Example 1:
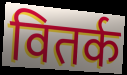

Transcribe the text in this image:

वितर्क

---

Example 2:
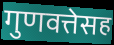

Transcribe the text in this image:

गुणवत्तेसह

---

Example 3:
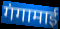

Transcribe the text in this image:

गंगामाई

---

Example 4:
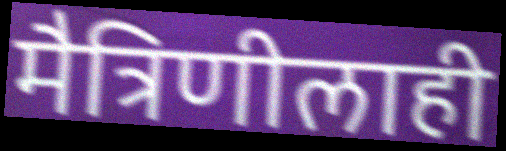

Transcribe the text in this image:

मैत्रिणीलाही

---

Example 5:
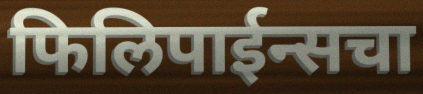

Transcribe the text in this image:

फिलिपाईन्सचा